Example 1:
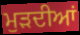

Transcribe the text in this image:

ਮੁੜਦੀਆਂ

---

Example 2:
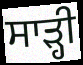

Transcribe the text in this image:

ਸਾੜ੍ਹੀ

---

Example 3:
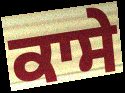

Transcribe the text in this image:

ਕਾਸੇ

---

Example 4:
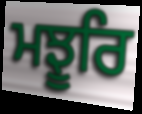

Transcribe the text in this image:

ਮਝੂਰਿ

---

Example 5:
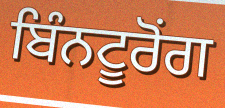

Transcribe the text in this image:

ਬਿੰਨਟੂਰੋਂਗ